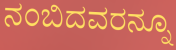
ನಂಬಿದವರನ್ನೂ